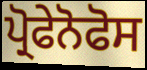
ਪ੍ਰੋਫੇਨੋਫੋਸ